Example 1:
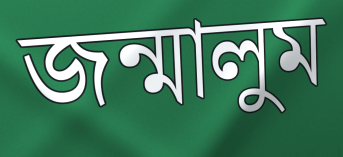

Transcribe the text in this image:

জন্মালুম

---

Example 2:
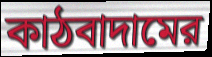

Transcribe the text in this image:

কাঠবাদামের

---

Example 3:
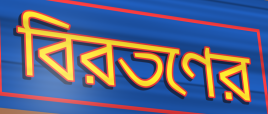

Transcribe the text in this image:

বিরতণের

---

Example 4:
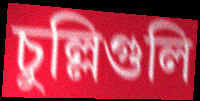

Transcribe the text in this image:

চুল্লিগুলি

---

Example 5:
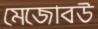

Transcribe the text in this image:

মেজোবউ